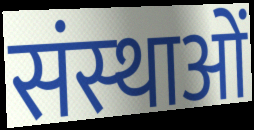
संस्‍थाओं